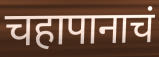
चहापानाचं